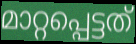
മാറ്റപ്പെട്ടത്